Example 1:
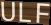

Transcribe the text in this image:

ULF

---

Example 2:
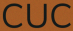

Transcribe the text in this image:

CUC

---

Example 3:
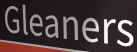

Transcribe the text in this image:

Gleaners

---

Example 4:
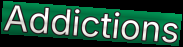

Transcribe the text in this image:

Addictions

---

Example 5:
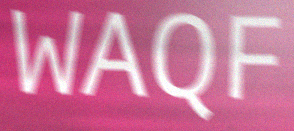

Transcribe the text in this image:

WAQF